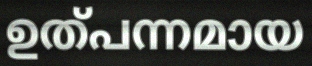
ഉത്പന്നമായ